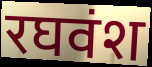
रघवंश